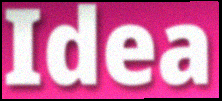
Idea